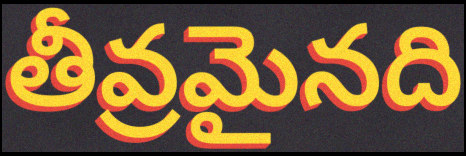
తీవ్రమైనది